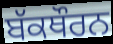
ਬੱਕਥੌਰਨ